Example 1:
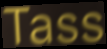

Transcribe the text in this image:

Tass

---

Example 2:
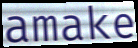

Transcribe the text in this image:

amake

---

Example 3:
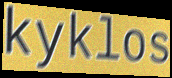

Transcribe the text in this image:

kyklos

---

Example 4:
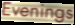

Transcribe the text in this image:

Evenings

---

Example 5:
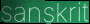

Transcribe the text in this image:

sanskrit